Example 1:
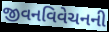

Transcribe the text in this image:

જીવનવિવેચનની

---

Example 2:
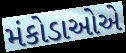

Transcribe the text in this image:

મંકોડાઓએ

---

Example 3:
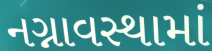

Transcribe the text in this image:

નગ્નાવસ્થામાં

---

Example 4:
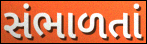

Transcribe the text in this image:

સંભાળતાં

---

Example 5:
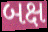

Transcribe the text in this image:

બક્ષ